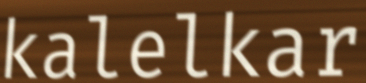
kalelkar